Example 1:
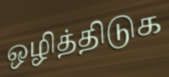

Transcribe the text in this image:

ஒழித்திடுக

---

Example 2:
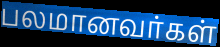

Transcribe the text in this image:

பலமானவர்கள்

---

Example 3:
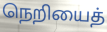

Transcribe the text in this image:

நெறியைத்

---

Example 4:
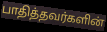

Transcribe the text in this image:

பாதித்தவர்களின்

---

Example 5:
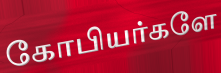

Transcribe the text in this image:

கோபியர்களே